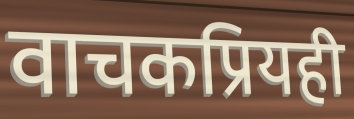
वाचकप्रियही